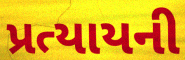
પ્રત્યાયની